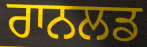
ਰਾਨਲਡ